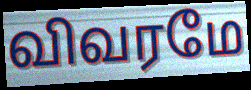
விவரமே